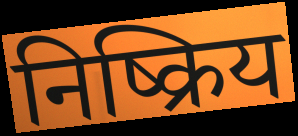
निष्क्रिय